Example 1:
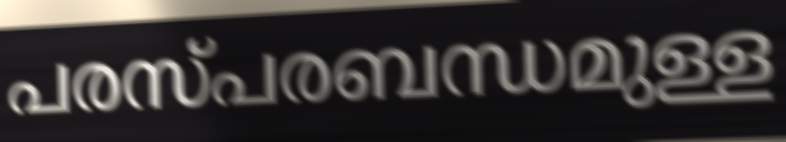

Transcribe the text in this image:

പരസ്പരബന്ധമുള്ള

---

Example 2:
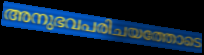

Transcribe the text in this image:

അനുഭവപരിചയത്തോടെ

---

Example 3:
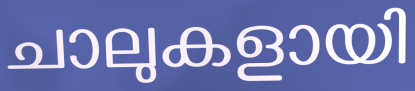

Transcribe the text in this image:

ചാലുകളായി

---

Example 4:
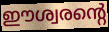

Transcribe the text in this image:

ഈശ്വരന്റെ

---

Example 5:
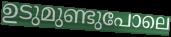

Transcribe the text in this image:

ഉടുമുണ്ടുപോലെ